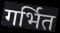
गर्भित